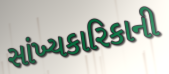
સાંખ્યકારિકાની